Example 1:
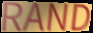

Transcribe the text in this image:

RAND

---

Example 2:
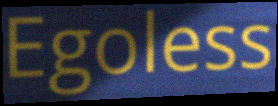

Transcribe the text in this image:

Egoless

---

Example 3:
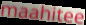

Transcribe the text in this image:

maahitee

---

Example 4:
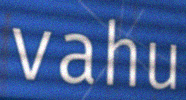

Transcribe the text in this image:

vahu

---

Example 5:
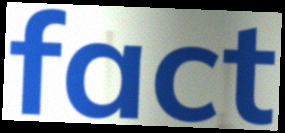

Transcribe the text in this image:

fact